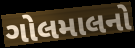
ગોલમાલનો